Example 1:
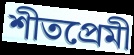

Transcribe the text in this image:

শীতপ্রেমী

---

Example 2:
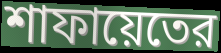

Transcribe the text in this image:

শাফায়েতের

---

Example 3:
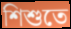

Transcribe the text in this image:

শিশুতে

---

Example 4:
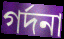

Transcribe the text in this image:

গর্দনা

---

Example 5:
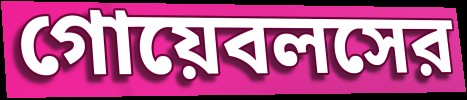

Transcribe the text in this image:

গোয়েবলসের